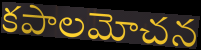
కపాలమోచన